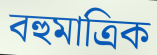
বহুমাত্ৰিক